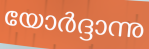
യോർദ്ദാന്നു